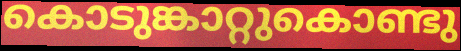
കൊടുങ്കാറ്റുകൊണ്ടു